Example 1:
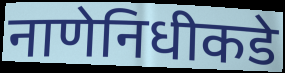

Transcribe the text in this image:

नाणेनिधीकडे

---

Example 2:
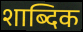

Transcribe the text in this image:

शाब्दिक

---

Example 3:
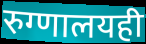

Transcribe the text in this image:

रुग्णालयही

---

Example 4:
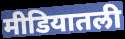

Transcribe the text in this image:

मीडियातली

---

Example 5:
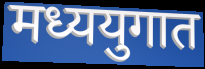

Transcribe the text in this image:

मध्ययुगात